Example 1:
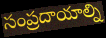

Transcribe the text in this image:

సంప్రదాయాల్ని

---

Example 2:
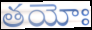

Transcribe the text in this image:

తయోః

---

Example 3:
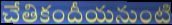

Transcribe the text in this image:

చేతికందీయనుంటి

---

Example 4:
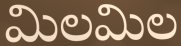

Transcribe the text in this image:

మిలమిల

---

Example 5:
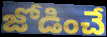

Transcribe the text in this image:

జోడించే